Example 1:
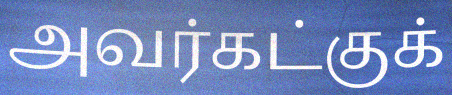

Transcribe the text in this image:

அவர்கட்குக்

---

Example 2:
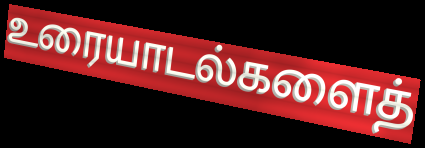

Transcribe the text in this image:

உரையாடல்களைத்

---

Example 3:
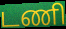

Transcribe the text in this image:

டணி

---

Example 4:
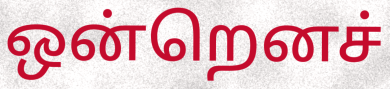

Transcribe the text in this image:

ஒன்றெனச்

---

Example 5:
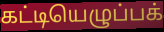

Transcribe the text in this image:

கட்டியெழுப்பக்